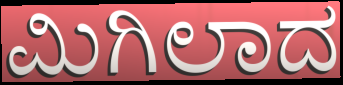
ಮಿಗಿಲಾದ